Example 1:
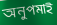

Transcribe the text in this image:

অনুপমাই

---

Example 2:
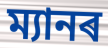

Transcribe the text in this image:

ম্যানৰ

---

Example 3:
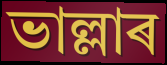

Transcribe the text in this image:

ভাল্লাৰ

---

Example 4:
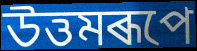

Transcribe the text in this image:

উত্তমৰূপে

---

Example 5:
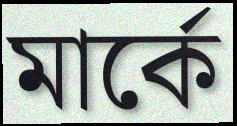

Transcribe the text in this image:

মাৰ্কে